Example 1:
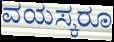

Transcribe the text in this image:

ವಯಸ್ಕರೂ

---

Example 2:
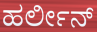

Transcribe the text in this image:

ಹರ್ಲೀನ್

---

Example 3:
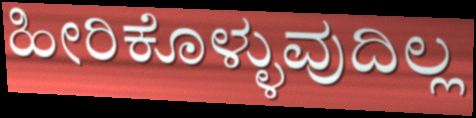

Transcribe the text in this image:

ಹೀರಿಕೊಳ್ಳುವುದಿಲ್ಲ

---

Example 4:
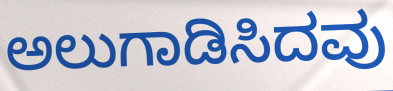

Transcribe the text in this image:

ಅಲುಗಾಡಿಸಿದವು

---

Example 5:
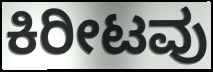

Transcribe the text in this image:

ಕಿರೀಟವು